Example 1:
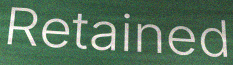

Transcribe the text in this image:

Retained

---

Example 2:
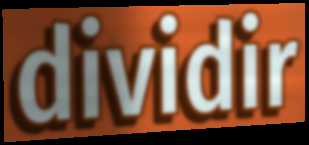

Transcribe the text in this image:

dividir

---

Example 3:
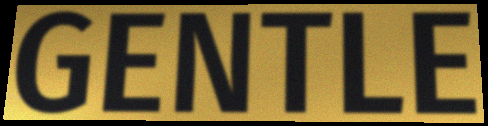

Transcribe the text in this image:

GENTLE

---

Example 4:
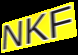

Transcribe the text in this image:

NKF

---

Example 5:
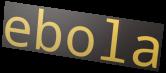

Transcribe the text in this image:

ebola